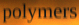
polymers